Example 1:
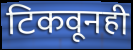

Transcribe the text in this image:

टिकवूनही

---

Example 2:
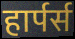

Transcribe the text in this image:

हार्पर्स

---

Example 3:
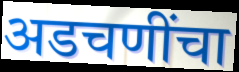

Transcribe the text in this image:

अडचणींचा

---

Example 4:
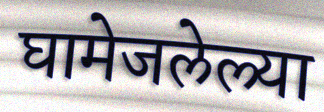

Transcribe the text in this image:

घामेजलेल्या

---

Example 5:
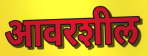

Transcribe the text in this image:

आवरशील